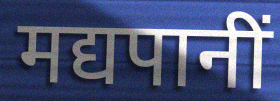
मद्यपानीं